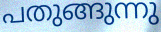
പതുങ്ങുന്നു